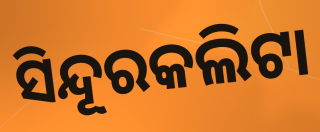
ସିନ୍ଦୂରକଲିଟା